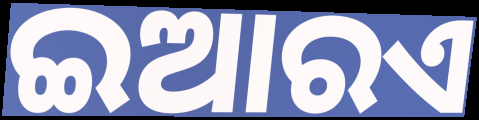
ଇଆରଏ